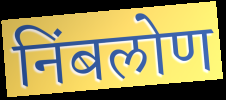
निंबलोण